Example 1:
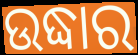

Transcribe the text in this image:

ଉଦ୍ଧାର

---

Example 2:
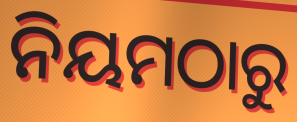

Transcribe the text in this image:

ନିୟମଠାରୁ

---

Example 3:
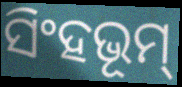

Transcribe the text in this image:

ସିଂହଭୂମ୍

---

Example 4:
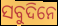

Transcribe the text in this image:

ସବୁଦିନେ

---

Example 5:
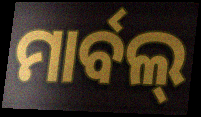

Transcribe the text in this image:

ମାର୍ବଲ୍